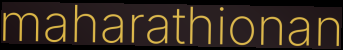
maharathionan